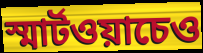
স্মার্টওয়াচেও